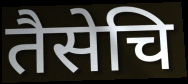
तैसेचि